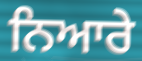
ਨਿਆਰੇ